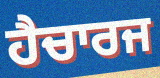
ਹੈਚਾਰਜ